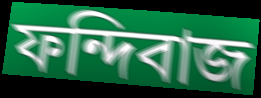
ফন্দিবাজ